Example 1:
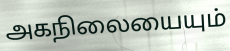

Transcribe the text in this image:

அகநிலையையும்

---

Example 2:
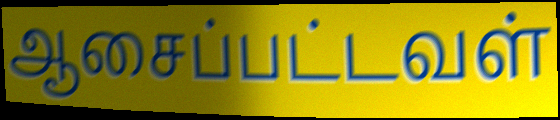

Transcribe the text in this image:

ஆசைப்பட்டவள்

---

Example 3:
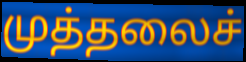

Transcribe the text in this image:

முத்தலைச்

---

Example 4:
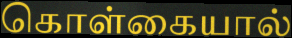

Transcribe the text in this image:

கொள்கையால்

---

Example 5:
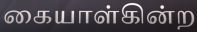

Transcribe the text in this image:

கையாள்கின்ற